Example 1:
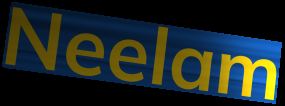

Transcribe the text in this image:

Neelam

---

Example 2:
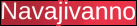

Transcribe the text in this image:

Navajivanno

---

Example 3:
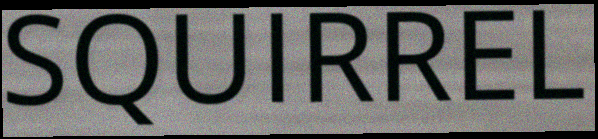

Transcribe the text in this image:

SQUIRREL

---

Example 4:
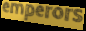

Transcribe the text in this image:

emperors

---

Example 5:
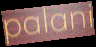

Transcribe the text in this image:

palani